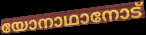
യോനാഥാനോട്